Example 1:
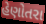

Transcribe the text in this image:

હેણોતરા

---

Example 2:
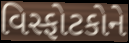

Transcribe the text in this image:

વિસ્ફોટકોને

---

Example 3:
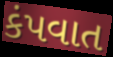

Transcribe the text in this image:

કંપવાત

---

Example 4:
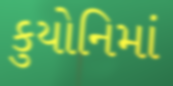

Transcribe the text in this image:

કુયોનિમાં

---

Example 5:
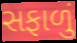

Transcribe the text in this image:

સફાળું